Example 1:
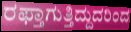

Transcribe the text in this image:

ರಫ್ತಾಗುತ್ತಿದ್ದುದರಿಂದ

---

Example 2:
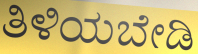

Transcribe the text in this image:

ತಿಳಿಯಬೇಡಿ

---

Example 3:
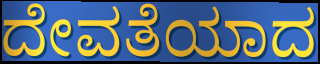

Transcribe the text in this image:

ದೇವತೆಯಾದ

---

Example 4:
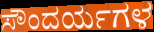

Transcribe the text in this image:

ಸೌಂದರ್ಯಗಳ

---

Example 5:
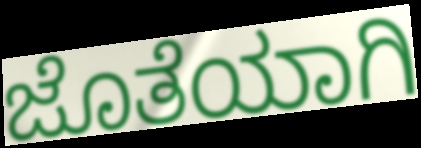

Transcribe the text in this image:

ಜೊತೆಯಾಗಿ